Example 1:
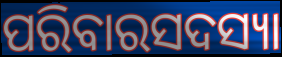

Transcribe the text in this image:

ପରିବାରସଦସ୍ୟା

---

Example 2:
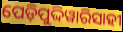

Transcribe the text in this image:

ପେଡ଼ିପୁଦ୍ଦିୱାରିସାହୀ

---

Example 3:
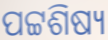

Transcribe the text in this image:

ପଟ୍ଟଶିଷ୍ୟ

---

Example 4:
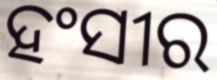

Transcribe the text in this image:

ହଂସୀର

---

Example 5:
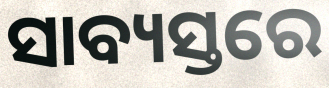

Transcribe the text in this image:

ସାବ୍ୟସ୍ତରେ